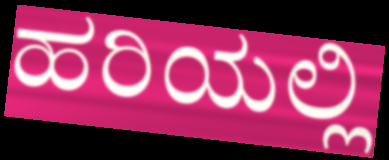
ಹರಿಯಲ್ಲಿ